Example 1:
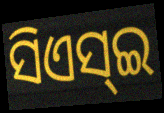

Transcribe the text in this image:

ସିଏସ୍ଇ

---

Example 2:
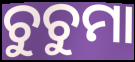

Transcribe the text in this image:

ଚୁଚୁମା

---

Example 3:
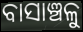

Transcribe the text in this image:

ବାସାଞ୍ଚଳୁ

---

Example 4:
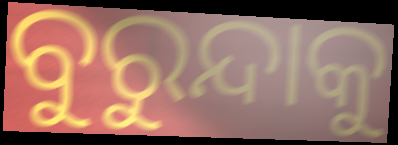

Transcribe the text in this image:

ବୁରୁନ୍ଦାକୁ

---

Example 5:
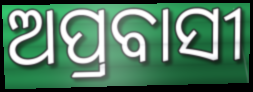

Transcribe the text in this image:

ଅପ୍ରବାସୀ